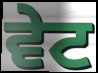
ਵੇਟ